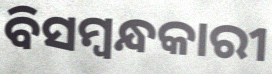
ବିସମ୍ବନ୍ଧକାରୀ